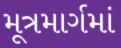
મૂત્રમાર્ગમાં